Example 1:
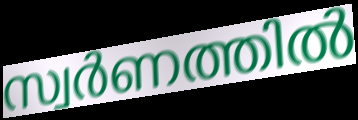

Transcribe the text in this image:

സ്വർണത്തിൽ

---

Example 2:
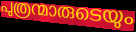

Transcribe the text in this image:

പുത്രന്മാരുടെയും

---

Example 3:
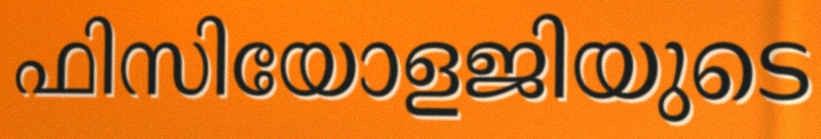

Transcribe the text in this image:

ഫിസിയോളജിയുടെ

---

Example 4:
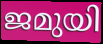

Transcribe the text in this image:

ജമുയി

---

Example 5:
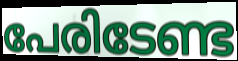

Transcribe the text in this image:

പേരിടേണ്ട